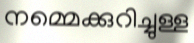
നമ്മെക്കുറിച്ചുള്ള